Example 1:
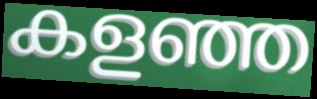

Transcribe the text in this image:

കളഞ്ഞ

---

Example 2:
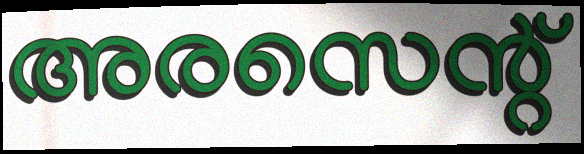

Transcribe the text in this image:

അരസെന്റ്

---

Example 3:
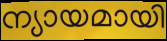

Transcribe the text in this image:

ന്യായമായി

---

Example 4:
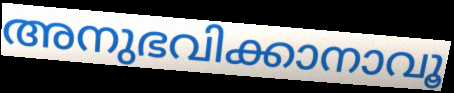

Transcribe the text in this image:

അനുഭവിക്കാനാവൂ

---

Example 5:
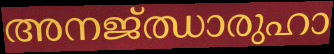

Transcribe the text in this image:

അനജ്ഝാരുഹാ